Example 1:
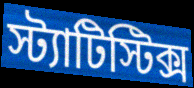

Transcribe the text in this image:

স্ট্যাটিস্টিক্স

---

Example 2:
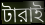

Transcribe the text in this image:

টারাই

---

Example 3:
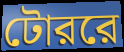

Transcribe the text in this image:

টোররে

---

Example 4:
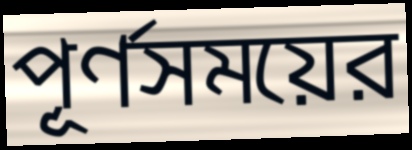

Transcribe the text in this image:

পূর্ণসময়ের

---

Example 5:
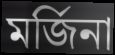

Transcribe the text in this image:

মর্জিনা